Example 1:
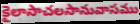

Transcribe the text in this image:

కైలాసాచలసానువాసము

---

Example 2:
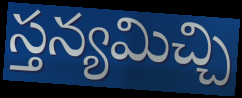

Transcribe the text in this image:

స్తన్యమిచ్చి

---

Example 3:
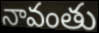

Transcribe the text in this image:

నావంతు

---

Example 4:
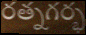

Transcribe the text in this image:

రత్నగర్భ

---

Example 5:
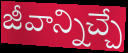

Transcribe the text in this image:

జీవాన్నిచ్చే